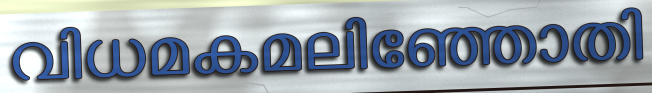
വിധമകമലിഞ്ഞോതി